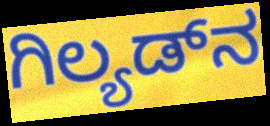
ಗಿಲ್ಯಡ್‌ನ